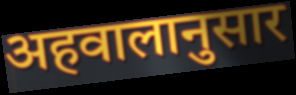
अहवालानुसार